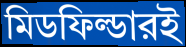
মিডফিল্ডারই